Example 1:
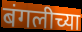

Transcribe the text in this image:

बंगलीच्या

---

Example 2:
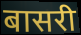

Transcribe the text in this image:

बासरी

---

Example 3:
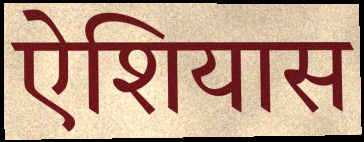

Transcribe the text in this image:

ऐशियास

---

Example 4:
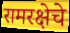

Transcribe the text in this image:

रामरक्षेचे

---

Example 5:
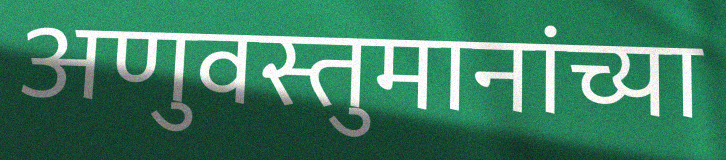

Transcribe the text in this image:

अणुवस्तुमानांच्या